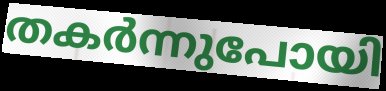
തകർന്നുപോയി